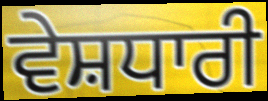
ਵੇਸ਼ਧਾਰੀ